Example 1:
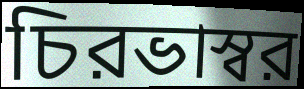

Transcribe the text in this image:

চিরভাস্বর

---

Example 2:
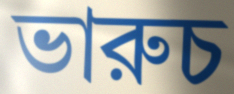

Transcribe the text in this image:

ভারুচ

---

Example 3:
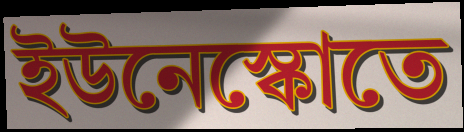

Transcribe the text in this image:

ইউনেস্কোতে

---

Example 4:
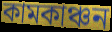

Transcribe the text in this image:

কামকাঞ্চন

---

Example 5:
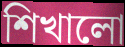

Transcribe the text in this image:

শিখালো